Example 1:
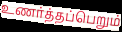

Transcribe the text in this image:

உணர்த்தப்பெறும்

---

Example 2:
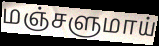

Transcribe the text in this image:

மஞ்சளுமாய்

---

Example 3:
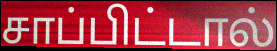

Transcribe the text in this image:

சாப்பிட்டால்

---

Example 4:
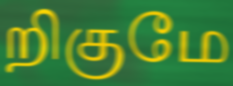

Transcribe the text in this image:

றிகுமே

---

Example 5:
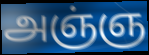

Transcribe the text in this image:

அஞ்ஞ